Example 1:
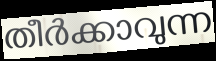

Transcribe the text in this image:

തീർക്കാവുന്ന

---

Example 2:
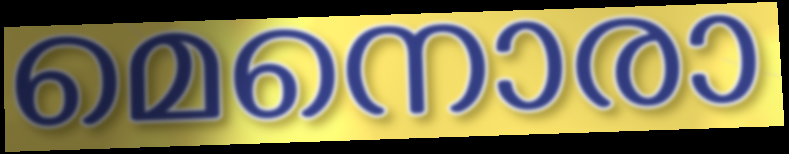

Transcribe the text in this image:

മെനൊരാ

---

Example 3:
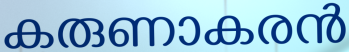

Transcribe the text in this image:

കരുണാകരൻ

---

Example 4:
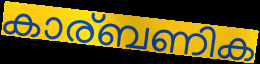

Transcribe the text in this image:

കാര്ബണിക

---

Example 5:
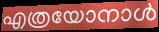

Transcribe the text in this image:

എത്രയോനാൾ